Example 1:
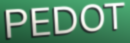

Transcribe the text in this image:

PEDOT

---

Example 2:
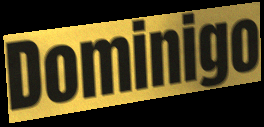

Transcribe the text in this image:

Dominigo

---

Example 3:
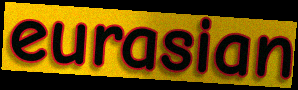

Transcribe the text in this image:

eurasian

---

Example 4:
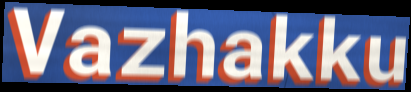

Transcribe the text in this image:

Vazhakku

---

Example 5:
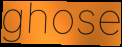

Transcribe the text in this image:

ghose